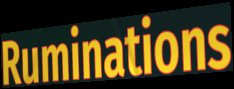
Ruminations